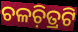
ଚଳଚ଼ିତ୍ରଟି